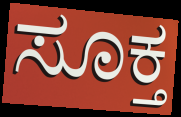
ಸೂಕ್ತ